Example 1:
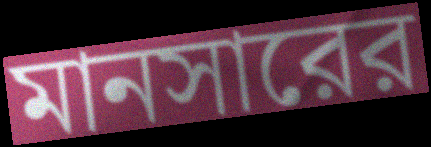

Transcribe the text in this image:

মানসারের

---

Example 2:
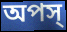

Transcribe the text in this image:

অপস্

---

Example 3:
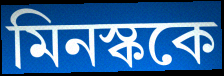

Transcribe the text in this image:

মিনস্ককে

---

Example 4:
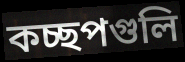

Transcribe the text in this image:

কচ্ছপগুলি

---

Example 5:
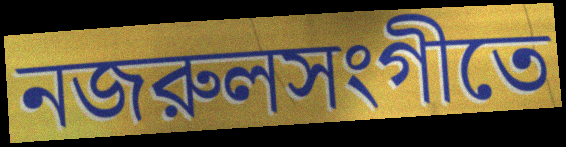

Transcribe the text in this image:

নজরুলসংগীতে